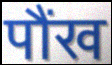
पौंख